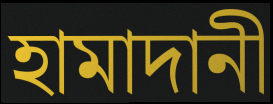
হামাদানী